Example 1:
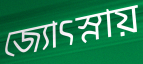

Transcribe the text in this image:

জ্যোৎস্নায়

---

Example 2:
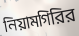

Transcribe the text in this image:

নিয়ামগিরির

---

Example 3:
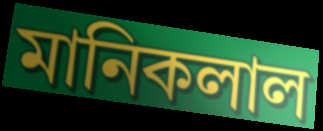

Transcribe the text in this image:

মানিকলাল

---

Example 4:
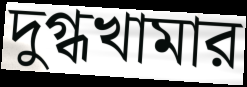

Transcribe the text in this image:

দুগ্ধখামার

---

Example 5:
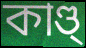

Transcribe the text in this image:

কাণ্ড্